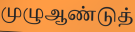
முழுஆண்டுத்